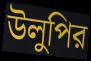
উলুপির